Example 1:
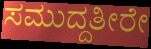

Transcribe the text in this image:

ಸಮುದ್ದತೀರೇ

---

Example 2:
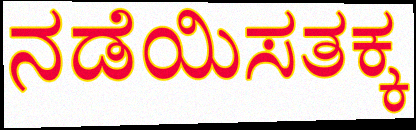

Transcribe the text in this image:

ನಡೆಯಿಸತಕ್ಕ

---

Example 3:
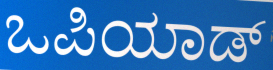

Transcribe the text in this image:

ಒಪಿಯಾಡ್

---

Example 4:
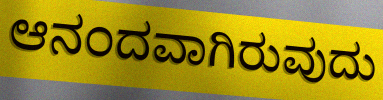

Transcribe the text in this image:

ಆನಂದವಾಗಿರುವುದು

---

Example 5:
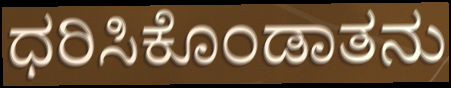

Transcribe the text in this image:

ಧರಿಸಿಕೊಂಡಾತನು